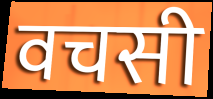
वचसी